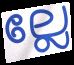
ല്ലേ